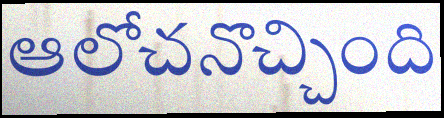
ఆలోచనొచ్చింది